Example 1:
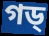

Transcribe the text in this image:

গড্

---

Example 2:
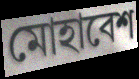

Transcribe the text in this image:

মোহাবেশ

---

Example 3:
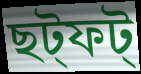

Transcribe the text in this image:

ছট্ফট্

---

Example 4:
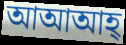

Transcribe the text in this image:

আআআহ্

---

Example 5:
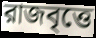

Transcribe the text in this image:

রাজবৃত্তে